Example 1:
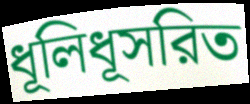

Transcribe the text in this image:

ধূলিধূসরিত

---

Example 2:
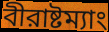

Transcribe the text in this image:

বীরাষ্টম্যাং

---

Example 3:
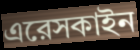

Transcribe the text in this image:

এরেসকাইন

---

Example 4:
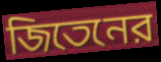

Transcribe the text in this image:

জিতেনের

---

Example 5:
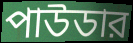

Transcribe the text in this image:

পাউডার